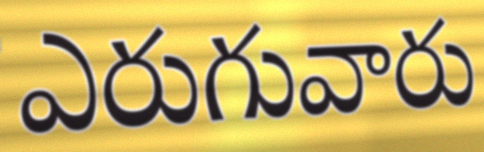
ఎరుగువారు